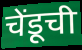
चेंडूची